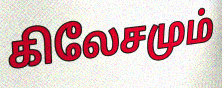
கிலேசமும்